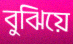
বুঝিয়ে